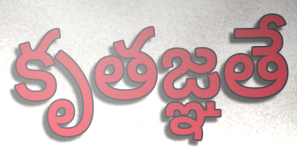
కృతజ్ఞతే